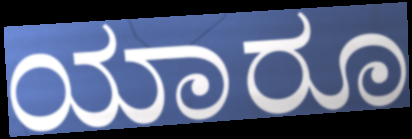
ಯಾರೂ